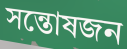
সন্তোষজন